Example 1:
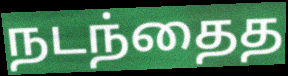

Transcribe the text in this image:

நடந்தைத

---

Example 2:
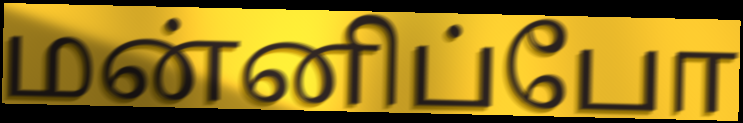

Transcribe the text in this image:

மன்னிப்போ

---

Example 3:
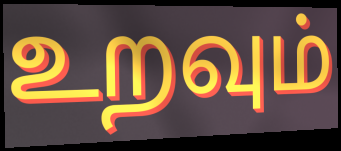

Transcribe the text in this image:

உறவும்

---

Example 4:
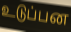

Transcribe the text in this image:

உடுப்பன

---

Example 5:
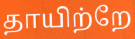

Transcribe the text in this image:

தாயிற்றே